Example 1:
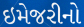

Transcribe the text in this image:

ઇમેજરીનો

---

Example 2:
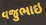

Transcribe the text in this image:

વજુભાઇ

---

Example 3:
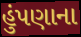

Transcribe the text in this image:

હુંપણાના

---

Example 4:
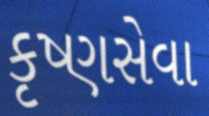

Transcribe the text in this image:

કૃષ્ણસેવા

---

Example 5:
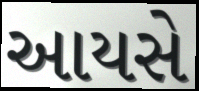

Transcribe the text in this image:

આયસે